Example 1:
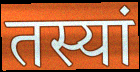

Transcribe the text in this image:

तस्यां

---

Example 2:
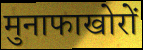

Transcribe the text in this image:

मुनाफाखोरों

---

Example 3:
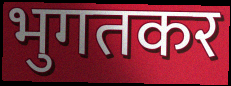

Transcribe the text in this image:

भुगतकर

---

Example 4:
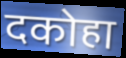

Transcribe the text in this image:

दकोहा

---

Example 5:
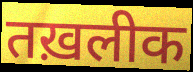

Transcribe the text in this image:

तख़लीक